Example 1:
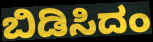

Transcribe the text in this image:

ಬಿಡಿಸಿದಂ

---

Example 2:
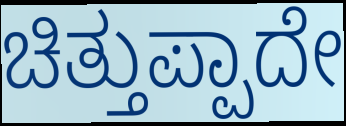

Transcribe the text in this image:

ಚಿತ್ತುಪ್ಪಾದೇ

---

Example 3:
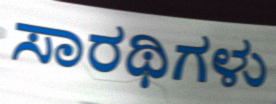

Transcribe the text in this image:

ಸಾರಥಿಗಳು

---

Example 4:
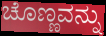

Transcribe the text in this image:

ಚೊಣ್ಣವನ್ನು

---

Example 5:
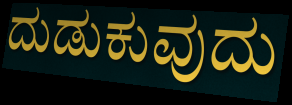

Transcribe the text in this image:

ದುಡುಕುವುದು